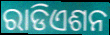
ରାଡିଏଶନ